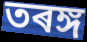
তৰঙ্গ